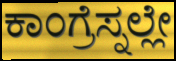
ಕಾಂಗ್ರೆಸ್ನಲ್ಲೇ